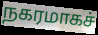
நகரமாகச்